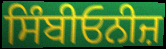
ਸਿੰਬੀਓਨੀਜ਼